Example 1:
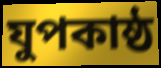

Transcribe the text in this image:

যুপকাষ্ঠ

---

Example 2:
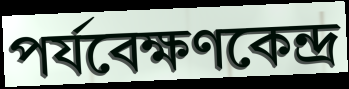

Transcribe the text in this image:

পর্যবেক্ষণকেন্দ্র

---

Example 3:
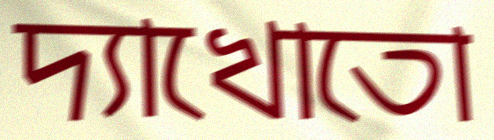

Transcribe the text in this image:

দ্যাখোতো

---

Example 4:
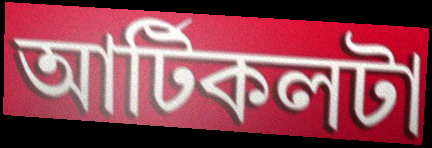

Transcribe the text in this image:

আর্টিকলটা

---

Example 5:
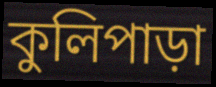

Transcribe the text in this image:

কুলিপাড়া